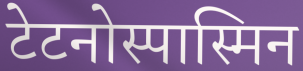
टेटनोस्पास्मिन